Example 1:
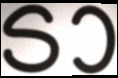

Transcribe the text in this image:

ടാ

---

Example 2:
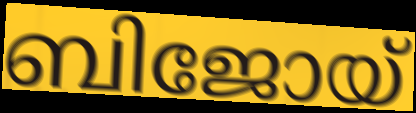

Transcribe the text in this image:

ബിജോയ്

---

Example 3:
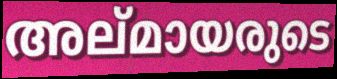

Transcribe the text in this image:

അല്മായരുടെ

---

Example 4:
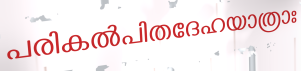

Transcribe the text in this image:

പരികൽപിതദേഹയാത്രാഃ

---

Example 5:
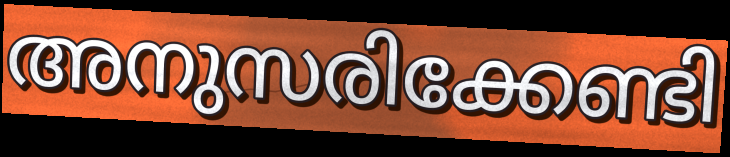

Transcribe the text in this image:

അനുസരിക്കേണ്ടി